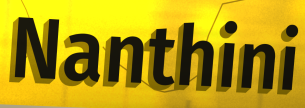
Nanthini